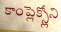
కాంప్లెక్స్లోని